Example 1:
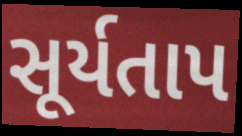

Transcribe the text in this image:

સૂર્યતાપ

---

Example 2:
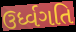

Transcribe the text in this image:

ઉર્ધ્વગતિ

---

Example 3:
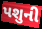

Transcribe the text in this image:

પશુની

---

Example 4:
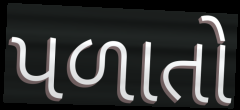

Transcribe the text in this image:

પળાતો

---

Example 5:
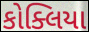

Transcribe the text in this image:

કોક્લિયા